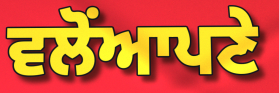
ਵਲੋਂਆਪਣੇ